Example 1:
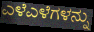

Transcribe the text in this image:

ಎಳೆಎಳೆಗಳನ್ನು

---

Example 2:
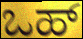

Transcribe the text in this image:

ಒಹ್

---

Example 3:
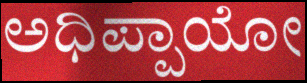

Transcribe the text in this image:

ಅಧಿಪ್ಪಾಯೋ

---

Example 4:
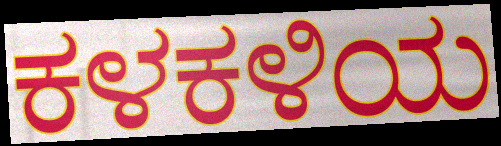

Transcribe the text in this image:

ಕಳಕಳಿಯ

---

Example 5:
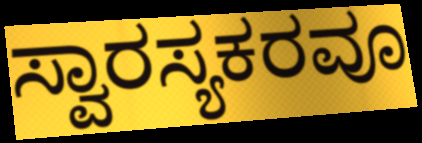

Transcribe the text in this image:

ಸ್ವಾರಸ್ಯಕರವೂ